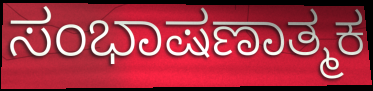
ಸಂಭಾಷಣಾತ್ಮಕ